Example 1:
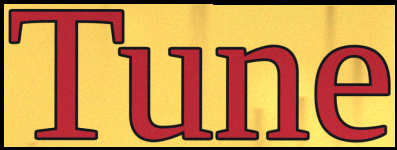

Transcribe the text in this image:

Tune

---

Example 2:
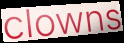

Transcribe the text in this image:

clowns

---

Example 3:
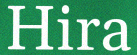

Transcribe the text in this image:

Hira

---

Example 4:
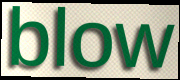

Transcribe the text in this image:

blow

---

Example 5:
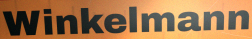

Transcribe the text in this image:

Winkelmann